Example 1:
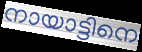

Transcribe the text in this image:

നായാട്ടിനെ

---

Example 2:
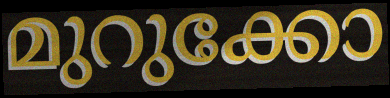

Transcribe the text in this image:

മുറുക്കോ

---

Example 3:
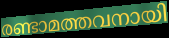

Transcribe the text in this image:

രണ്ടാമത്തവനായി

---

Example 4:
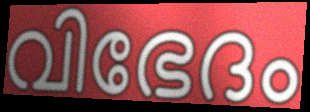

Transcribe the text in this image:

വിഭേദം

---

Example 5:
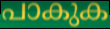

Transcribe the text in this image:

പാകുക